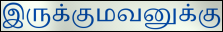
இருக்குமவனுக்கு